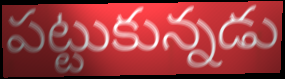
పట్టుకున్నడు